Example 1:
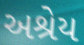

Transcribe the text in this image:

અશ્રેય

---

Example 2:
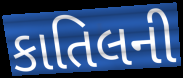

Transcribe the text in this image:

કાતિલની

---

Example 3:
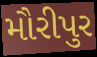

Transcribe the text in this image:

મૌરીપુર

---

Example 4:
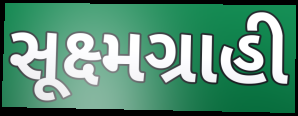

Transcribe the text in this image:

સૂક્ષ્મગ્રાહી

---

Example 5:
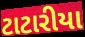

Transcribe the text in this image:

ટાટારીયા